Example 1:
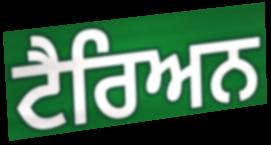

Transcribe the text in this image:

ਟੈਰਿਅਨ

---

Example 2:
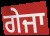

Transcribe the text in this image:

ਗੇਜਾ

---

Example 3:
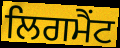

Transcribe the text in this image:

ਲਿਗਮੈਂਟ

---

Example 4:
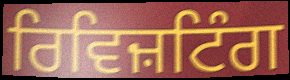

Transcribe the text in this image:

ਰਿਵਿਜ਼ਟਿੰਗ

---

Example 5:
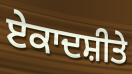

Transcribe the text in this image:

ਏਕਾਦਸ਼ੀਤੇ